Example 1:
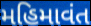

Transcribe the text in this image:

મહિમાવંત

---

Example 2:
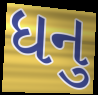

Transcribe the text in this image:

ધનુ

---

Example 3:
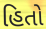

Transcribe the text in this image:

હિતો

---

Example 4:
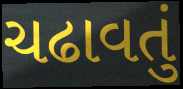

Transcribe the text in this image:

ચઢાવતું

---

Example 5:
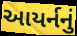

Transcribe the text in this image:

આયર્નનું